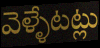
వెళ్ళేటట్లు